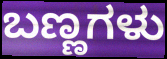
ಬಣ್ಣಗಳು